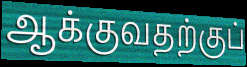
ஆக்குவதற்குப்